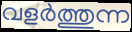
വളർത്തുന്ന